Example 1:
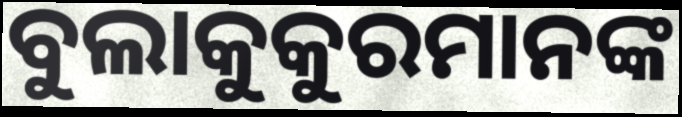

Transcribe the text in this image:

ବୁଲାକୁକୁରମାନଙ୍କ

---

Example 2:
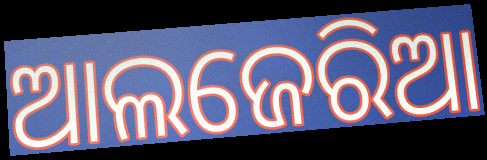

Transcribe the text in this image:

ଆଲଜେରିଆ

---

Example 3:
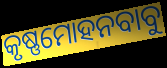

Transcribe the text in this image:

କୃଷ୍ଣମୋହନବାବୁ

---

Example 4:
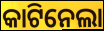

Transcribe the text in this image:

କାଟିନେଲା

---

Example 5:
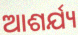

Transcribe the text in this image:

ଆଶର୍ଯ୍ୟ